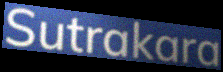
Sutrakara